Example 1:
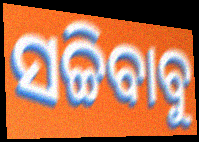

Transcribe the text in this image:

ସଚ୍ଚିବାବୁ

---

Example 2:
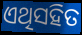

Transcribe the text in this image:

ଏଥିସହିତ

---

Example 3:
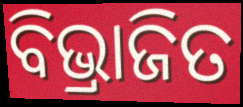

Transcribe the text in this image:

ବିଭ୍ରାଜିତ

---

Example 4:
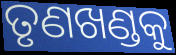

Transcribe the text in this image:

ତୃଣଖଣ୍ଡକୁ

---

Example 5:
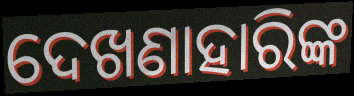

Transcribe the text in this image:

ଦେଖଣାହାରିଙ୍କ